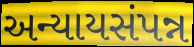
અન્યાયસંપન્ન